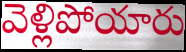
వెళ్లిపోయారు